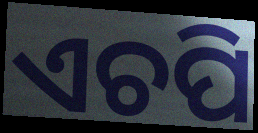
ଏଚପି